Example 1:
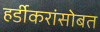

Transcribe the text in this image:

हर्डीकरांसोबत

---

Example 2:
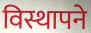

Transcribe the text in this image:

विस्थापने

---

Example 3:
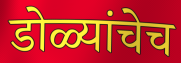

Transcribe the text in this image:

डोळ्यांचेच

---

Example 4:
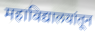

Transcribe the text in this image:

महाविद्यालयांतून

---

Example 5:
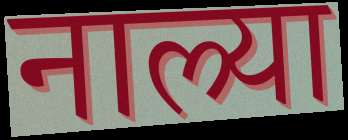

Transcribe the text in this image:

नाल्या